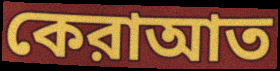
কেরাআত